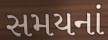
સમયનાં